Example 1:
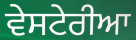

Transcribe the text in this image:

ਵੇਸਟੇਰੀਆ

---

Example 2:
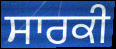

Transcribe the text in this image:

ਸਾਰਕੀ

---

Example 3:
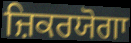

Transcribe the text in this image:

ਜ਼ਿਕਰਯੋਗਾ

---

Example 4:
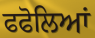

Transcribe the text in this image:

ਫਫੋਲਿਆਂ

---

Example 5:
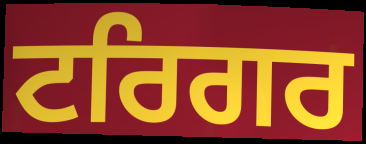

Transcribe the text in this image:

ਟਰਿਗਰ